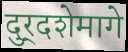
दुर्दशेमागे